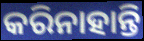
କରିନାହାନ୍ତି